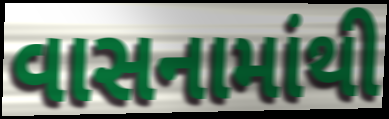
વાસનામાંથી